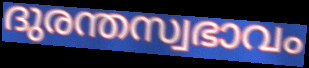
ദുരന്തസ്വഭാവം